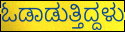
ಓಡಾಡುತ್ತಿದ್ದಳು